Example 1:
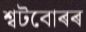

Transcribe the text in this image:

শ্বটবোৰৰ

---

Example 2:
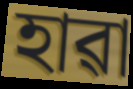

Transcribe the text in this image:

হাৱা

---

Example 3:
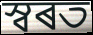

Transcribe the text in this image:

স্বৰত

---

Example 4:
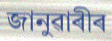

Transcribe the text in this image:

জানুৱাৰীৰ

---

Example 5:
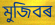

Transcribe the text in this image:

মুজিবৰ